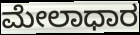
ಮೇಲಾಧಾರ